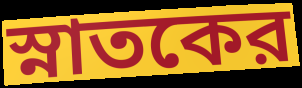
স্নাতকের